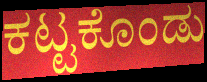
ಕಟ್ಟಕೊಂಡು